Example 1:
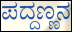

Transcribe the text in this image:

ಪದ್ದಣ್ಣನ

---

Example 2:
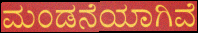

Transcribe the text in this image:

ಮಂಡನೆಯಾಗಿವೆ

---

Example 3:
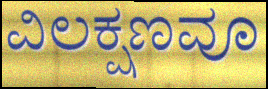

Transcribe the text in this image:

ವಿಲಕ್ಷಣವೂ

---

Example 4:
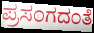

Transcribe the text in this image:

ಪ್ರಸಂಗದಂತೆ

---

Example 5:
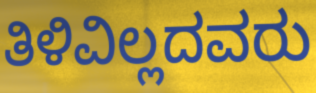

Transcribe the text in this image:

ತಿಳಿವಿಲ್ಲದವರು